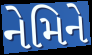
નેમિને